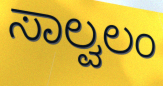
ಸಾಲ್ವಲಂ